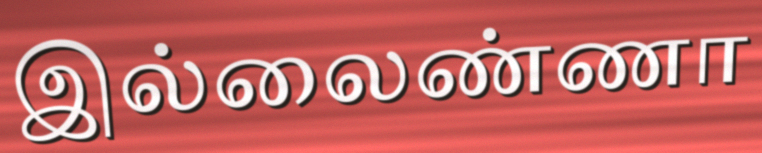
இல்லைண்ணா